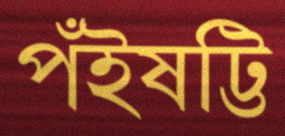
পঁইষট্টি